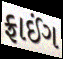
ફ્રાઈંગ